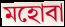
মহোবা